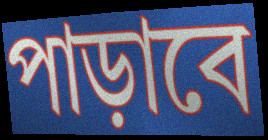
পাড়াবে